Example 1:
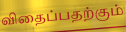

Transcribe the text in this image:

விதைப்பதற்கும்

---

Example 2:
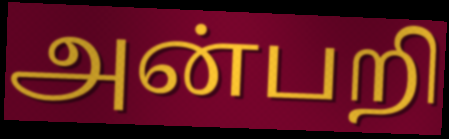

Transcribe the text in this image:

அன்பறி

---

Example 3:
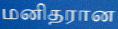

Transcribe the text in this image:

மனிதரான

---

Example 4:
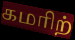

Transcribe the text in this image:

கமரிற்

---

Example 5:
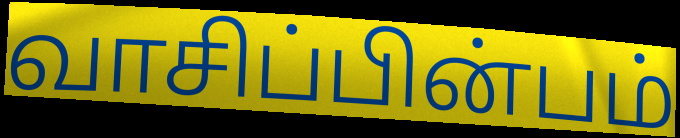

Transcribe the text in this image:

வாசிப்பின்பம்